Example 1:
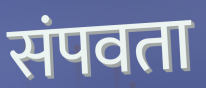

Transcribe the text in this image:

संपवता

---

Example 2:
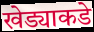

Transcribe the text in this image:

खेड्याकडे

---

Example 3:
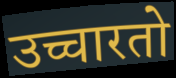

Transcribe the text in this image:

उच्चारतो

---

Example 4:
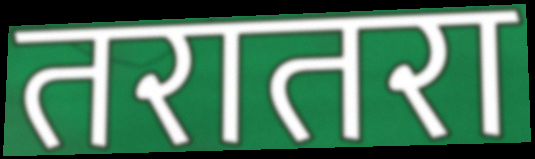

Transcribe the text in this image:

तरातरा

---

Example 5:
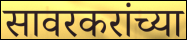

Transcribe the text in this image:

सावरकरांच्या